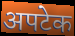
अपटेक